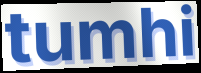
tumhi